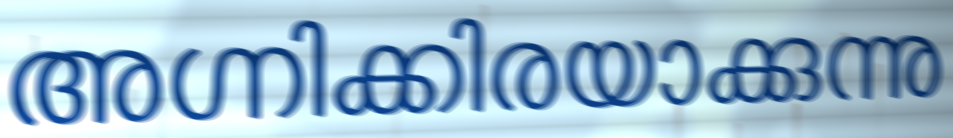
അഗ്നിക്കിരയാക്കുന്നു